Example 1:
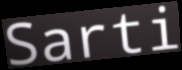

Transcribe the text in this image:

Sarti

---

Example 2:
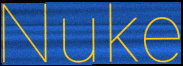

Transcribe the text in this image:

Nuke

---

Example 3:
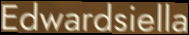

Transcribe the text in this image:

Edwardsiella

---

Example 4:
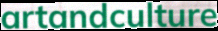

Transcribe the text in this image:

artandculture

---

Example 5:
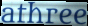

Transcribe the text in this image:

athree